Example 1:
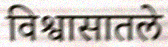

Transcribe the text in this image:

विश्वासातले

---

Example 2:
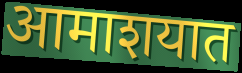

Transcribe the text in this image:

आमाशयात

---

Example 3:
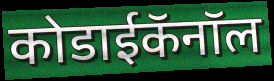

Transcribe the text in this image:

कोडाईकॅनॉल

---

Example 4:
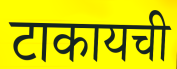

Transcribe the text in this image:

टाकायची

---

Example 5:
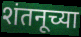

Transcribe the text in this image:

शंतनूच्या